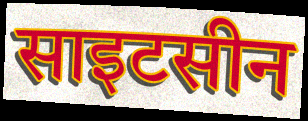
साइटसीन